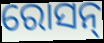
ରୋସନ୍